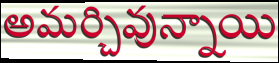
అమర్చివున్నాయి